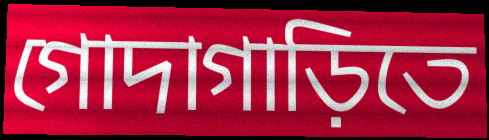
গোদাগাড়িতে